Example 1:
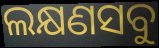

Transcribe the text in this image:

ଲକ୍ଷଣସବୁ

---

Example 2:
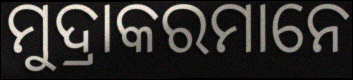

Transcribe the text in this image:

ମୁଦ୍ରାକରମାନେ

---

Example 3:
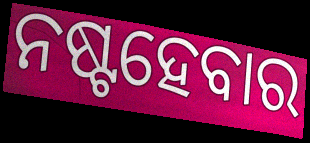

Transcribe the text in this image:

ନଷ୍ଟହେବାର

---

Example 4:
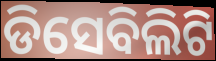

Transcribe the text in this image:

ଡିସେବିଲିଟି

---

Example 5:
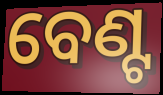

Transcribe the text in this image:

ବେଣ୍ଟ